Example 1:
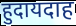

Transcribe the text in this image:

हुदायदाह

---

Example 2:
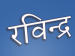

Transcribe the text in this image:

रविन्द्र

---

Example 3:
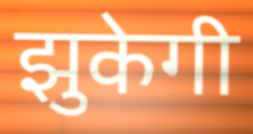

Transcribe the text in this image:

झुकेगी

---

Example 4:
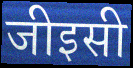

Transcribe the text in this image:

जीइसी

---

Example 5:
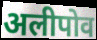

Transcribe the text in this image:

अलीपोव